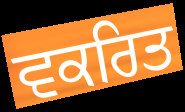
ਵਕਰਿਤ